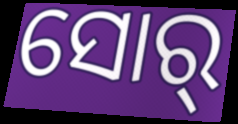
ସୋର୍